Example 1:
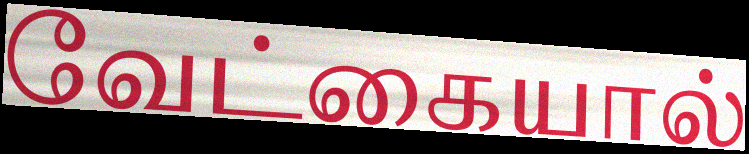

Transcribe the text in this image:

வேட்கையால்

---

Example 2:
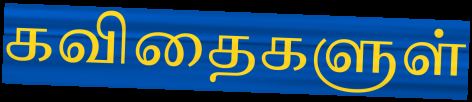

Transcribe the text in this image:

கவிதைகளுள்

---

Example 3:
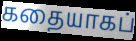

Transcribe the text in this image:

கதையாகப்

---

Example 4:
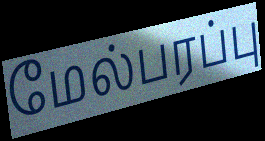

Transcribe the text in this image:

மேல்பரப்பு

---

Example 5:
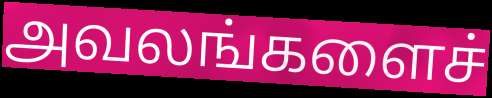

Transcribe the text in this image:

அவலங்களைச்